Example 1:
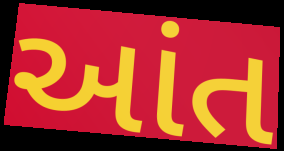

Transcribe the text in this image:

આંત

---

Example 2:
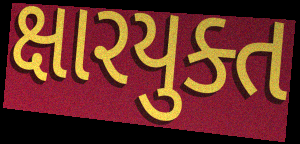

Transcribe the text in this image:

ક્ષારયુક્ત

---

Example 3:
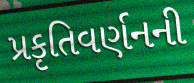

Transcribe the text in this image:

પ્રકૃતિવર્ણનની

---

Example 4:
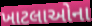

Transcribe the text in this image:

ખાટલાઓના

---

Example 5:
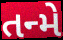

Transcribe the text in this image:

તન્મે